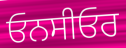
ਓਨਸੀਓਰ